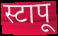
स्टापू